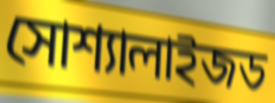
সোশ্যালাইজড